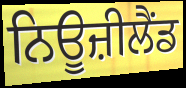
ਨਿਊਜ਼ੀਲੈਂਡ